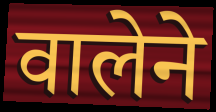
वालेने